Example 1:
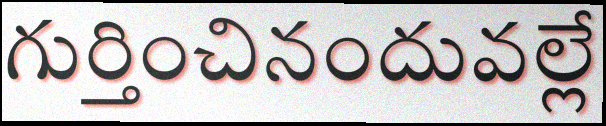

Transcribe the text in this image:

గుర్తించినందువల్లే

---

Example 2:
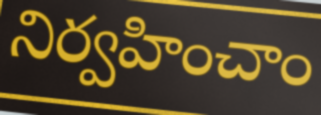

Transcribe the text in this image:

నిర్వహించాం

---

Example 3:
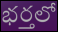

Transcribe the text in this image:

భర్తలో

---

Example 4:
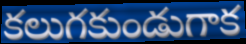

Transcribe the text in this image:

కలుగకుండుగాక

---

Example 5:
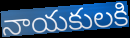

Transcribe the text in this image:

నాయకులకి